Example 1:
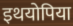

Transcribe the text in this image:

इथयोपिया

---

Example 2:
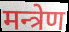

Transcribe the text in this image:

मन्त्रेण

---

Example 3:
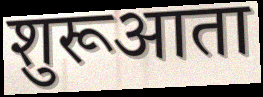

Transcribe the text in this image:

शुरूआता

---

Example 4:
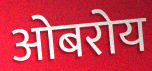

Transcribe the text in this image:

ओबरोय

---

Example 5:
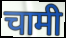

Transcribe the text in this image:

चामी